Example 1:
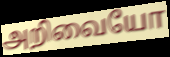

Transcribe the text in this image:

அறிவையோ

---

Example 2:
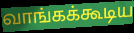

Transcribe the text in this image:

வாங்கக்கூடிய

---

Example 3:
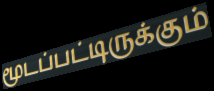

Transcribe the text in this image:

மூடப்பட்டிருக்கும்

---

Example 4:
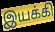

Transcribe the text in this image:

இயக்கி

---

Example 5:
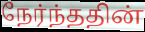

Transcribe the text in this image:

நேர்ந்ததின்